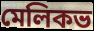
মেলিকভ